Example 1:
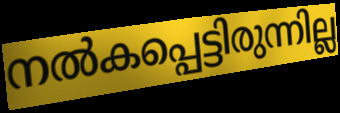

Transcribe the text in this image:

നൽകപ്പെട്ടിരുന്നില്ല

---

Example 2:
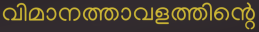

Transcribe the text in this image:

വിമാനത്താവളത്തിന്റെ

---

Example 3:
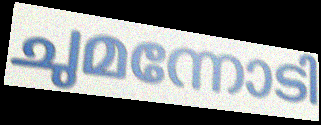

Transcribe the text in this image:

ചുമന്നോടി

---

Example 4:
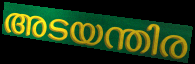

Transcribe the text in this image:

അടയന്തിര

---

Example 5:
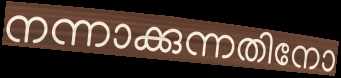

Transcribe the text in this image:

നന്നാക്കുന്നതിനോ